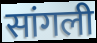
सांगली